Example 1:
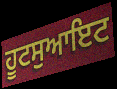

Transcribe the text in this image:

ਹੂਟਸੁਆਇਟ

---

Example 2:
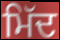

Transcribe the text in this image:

ਮਿੱਦ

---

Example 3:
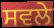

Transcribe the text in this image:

ਸਵਲੇ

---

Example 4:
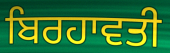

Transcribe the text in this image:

ਬਿਰਹਾਵਤੀ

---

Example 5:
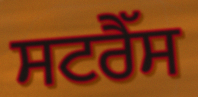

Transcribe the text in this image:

ਸਟਰੈੱਸ